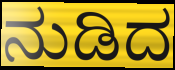
ನುಡಿದ